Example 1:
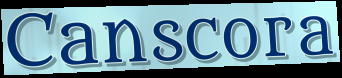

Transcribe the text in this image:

Canscora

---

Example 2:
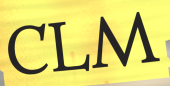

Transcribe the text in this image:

CLM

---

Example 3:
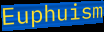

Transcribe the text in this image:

Euphuism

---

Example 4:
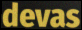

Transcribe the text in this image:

devas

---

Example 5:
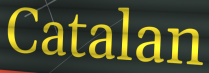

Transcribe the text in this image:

Catalan